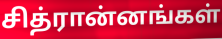
சித்ரான்னங்கள்